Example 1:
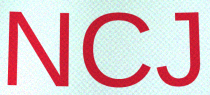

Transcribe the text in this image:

NCJ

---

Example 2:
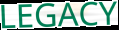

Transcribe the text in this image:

LEGACY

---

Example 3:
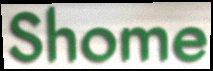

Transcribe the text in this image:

Shome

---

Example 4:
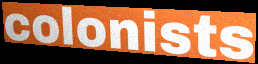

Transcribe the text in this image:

colonists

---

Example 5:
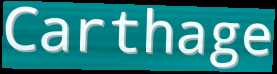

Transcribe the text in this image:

Carthage